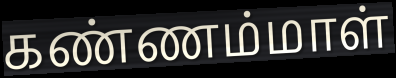
கண்ணம்மாள்